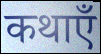
कथाएँ